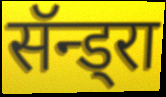
सॅन्ड्रा